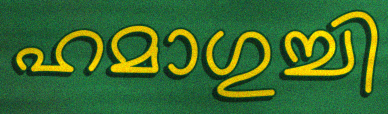
ഹമാഗുച്ചി